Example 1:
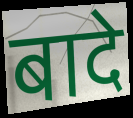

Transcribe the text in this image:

बादे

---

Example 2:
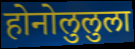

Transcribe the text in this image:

होनोलुलुला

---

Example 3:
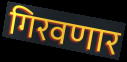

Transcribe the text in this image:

गिरवणार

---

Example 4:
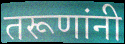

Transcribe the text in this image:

तरूणांनी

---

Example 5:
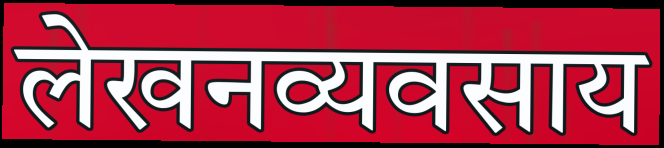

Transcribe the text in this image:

लेखनव्यवसाय